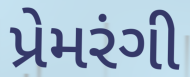
પ્રેમરંગી